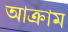
আক্রাম